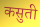
कसुती